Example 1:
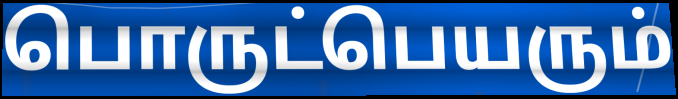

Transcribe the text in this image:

பொருட்பெயரும்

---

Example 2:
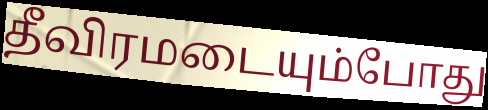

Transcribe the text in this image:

தீவிரமடையும்போது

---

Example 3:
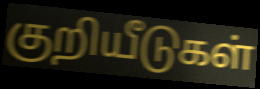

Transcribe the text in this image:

குறியீடுகள்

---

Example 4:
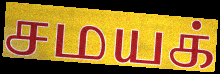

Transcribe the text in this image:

சமயக்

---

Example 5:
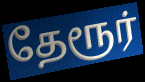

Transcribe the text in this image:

தேரூர்